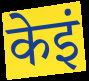
केइं